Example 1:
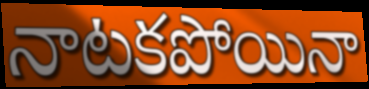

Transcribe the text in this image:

నాటకపోయినా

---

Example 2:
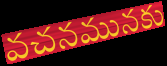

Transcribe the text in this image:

వచనమునకు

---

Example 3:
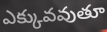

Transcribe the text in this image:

ఎక్కువవుతూ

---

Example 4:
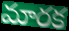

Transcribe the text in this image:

మారక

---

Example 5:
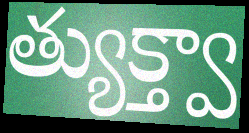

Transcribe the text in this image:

త్యుక్త్వా